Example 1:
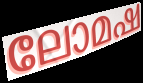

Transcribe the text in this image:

ലോമഷ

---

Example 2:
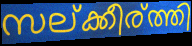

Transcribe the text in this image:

സല്ക്കീര്ത്തി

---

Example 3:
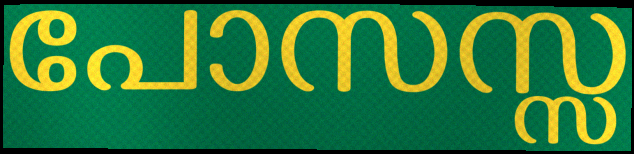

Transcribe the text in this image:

പോസസ്സ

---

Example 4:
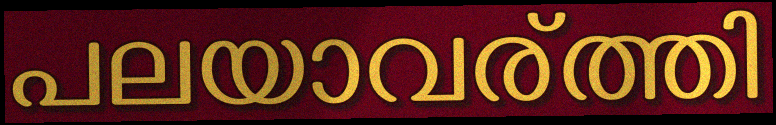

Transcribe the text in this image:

പലയാവര്ത്തി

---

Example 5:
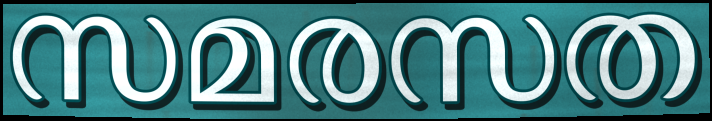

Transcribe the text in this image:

സമരസത